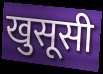
खुसूसी